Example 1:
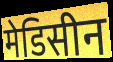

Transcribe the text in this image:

मेडिसीन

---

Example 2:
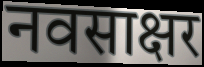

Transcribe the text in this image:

नवसाक्षर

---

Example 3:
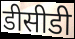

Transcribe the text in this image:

डीसीडी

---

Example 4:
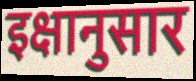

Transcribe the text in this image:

इक्षानुसार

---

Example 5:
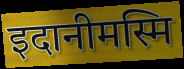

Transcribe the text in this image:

इदानीमस्मि